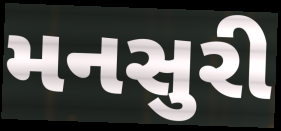
મનસુરી